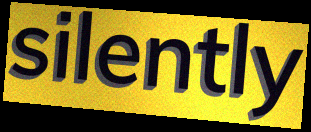
silently